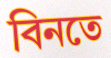
বিনতে